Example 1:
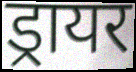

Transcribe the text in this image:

ड्रायर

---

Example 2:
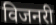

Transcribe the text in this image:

विजनरी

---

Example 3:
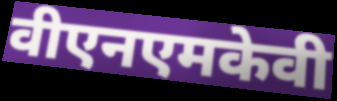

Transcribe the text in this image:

वीएनएमकेवी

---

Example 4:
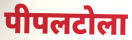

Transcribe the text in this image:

पीपलटोला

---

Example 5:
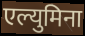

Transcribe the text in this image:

एल्युमिना